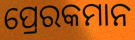
ପ୍ରେରକମାନ